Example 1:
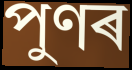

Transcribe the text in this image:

পুণৰ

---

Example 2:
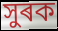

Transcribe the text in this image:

সুৰক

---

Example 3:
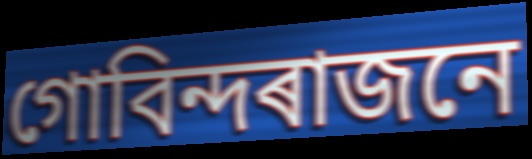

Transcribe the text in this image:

গোবিন্দৰাজনে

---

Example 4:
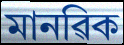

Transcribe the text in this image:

মানৱিক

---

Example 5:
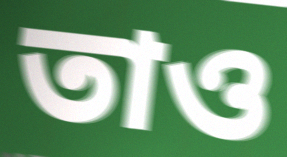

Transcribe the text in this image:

তাও